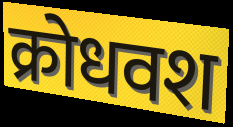
क्रोधवश